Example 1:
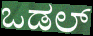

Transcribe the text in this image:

ಒಡಲ್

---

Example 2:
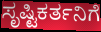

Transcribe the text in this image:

ಸೃಷ್ಟಿಕರ್ತನಿಗೆ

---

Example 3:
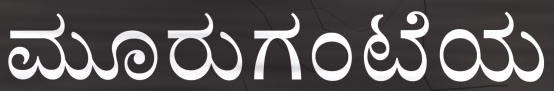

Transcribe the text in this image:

ಮೂರುಗಂಟೆಯ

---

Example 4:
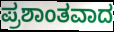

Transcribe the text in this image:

ಪ್ರಶಾಂತವಾದ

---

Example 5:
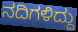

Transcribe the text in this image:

ನದಿಗಳಿದ್ದು